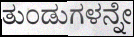
ತುಂಡುಗಳನ್ನೇ